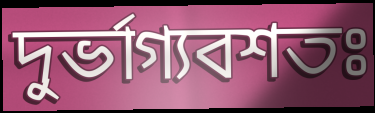
দুৰ্ভাগ্যবশতঃ